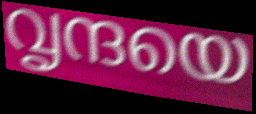
വൃന്ദയെ